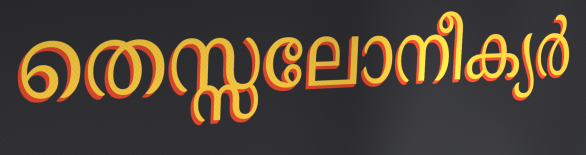
തെസ്സലോനീക്യർ